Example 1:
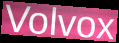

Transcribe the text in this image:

Volvox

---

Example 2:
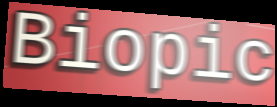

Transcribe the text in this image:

Biopic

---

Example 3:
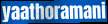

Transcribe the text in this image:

yaathoramani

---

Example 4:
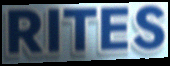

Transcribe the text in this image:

RITES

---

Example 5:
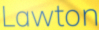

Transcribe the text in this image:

Lawton